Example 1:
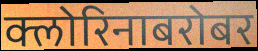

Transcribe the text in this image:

क्लोरिनाबरोबर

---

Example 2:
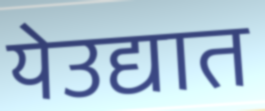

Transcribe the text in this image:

येउद्यात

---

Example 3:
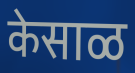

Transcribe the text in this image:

केसाळ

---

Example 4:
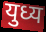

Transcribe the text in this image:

युध्य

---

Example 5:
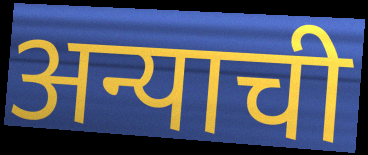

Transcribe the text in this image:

अन्याची